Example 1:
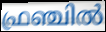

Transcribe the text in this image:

ഫ്രഞ്ചിൽ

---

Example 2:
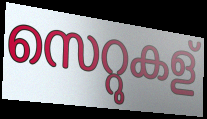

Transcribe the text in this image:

സെറ്റുകള്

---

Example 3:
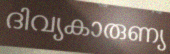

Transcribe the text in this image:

ദിവ്യകാരുണ്യ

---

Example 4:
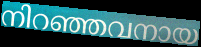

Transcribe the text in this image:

നിറഞ്ഞവനായ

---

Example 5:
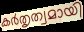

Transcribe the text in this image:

കർതൃത്വമായി